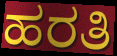
ಹರತಿ